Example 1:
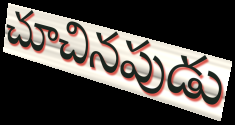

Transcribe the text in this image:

చూచినపుడు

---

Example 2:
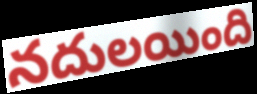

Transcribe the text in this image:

నదులయింది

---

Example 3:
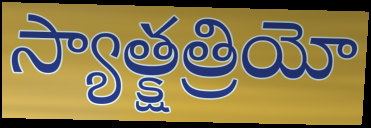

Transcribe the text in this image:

స్యాత్క్షత్రియో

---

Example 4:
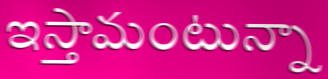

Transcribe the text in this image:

ఇస్తామంటున్నా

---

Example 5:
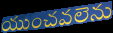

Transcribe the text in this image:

యుంచవలెను